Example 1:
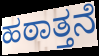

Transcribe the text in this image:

ಹಠಾತ್ತನೆ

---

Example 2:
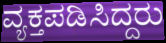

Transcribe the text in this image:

ವ್ಯಕ್ತಪಡಿಸಿದ್ದರು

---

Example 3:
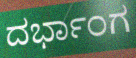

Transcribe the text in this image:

ದರ್ಭಾಂಗ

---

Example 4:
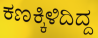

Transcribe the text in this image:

ಕಣಕ್ಕಿಳಿದಿದ್ದ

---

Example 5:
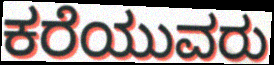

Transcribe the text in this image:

ಕರೆಯುವರು